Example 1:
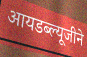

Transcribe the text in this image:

आयडब्ल्यूजीने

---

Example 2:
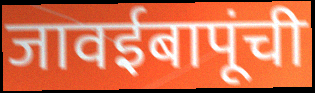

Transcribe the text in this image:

जावईबापूंची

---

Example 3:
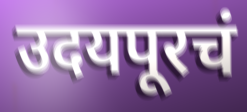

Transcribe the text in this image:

उदयपूरचं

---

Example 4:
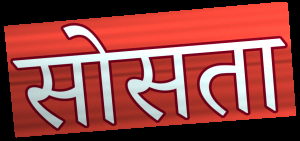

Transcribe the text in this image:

सोसता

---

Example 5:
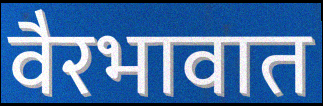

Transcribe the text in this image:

वैरभावात